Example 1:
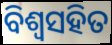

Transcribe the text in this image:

ବିଶ୍ଵସହିତ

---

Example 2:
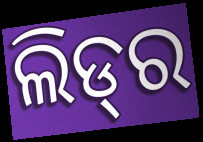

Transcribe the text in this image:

ଲିଡ୍‌ର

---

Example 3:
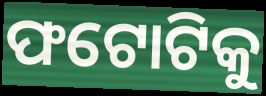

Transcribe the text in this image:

ଫଟୋଟିକୁ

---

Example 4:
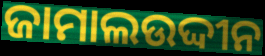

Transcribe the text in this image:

ଜାମାଲଉଦ୍ଦୀନ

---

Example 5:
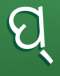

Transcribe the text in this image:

ପ୍